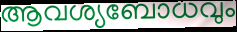
ആവശ്യബോധവും